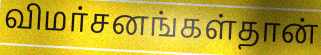
விமர்சனங்கள்தான்